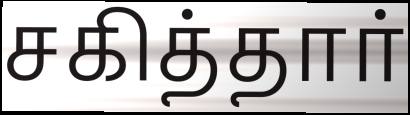
சகித்தார்